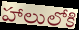
హాలులోకి